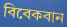
বিবেকবান